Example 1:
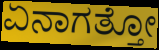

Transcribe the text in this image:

ಏನಾಗತ್ತೋ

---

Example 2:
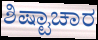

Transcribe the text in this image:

ಶಿಷ್ಟಾಚಾರ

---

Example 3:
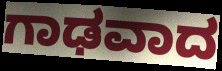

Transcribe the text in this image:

ಗಾಢವಾದ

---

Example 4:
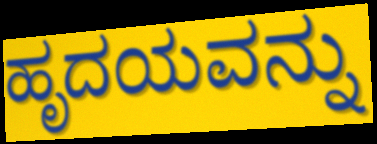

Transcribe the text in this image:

ಹೃದಯವನ್ನು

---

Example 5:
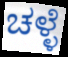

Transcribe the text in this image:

ಚಳ್ಳೆ